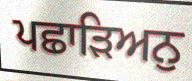
ਪਛਾੜਿਅਨੁ